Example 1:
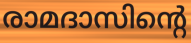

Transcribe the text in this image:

രാമദാസിന്റെ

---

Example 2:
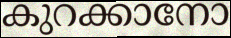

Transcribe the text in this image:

കുറക്കാനോ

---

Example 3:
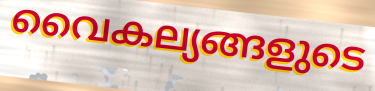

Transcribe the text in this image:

വൈകല്യങ്ങളുടെ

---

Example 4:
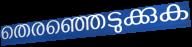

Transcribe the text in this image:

തെരഞ്ഞെടുക്കുക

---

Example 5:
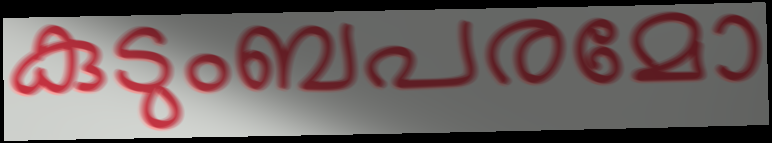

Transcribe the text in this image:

കുടുംബപരമോ